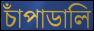
চাঁপাডালি